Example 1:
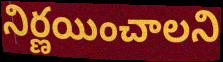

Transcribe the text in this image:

నిర్ణయించాలని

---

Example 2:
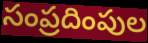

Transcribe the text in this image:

సంప్రదింపుల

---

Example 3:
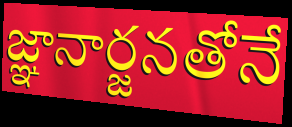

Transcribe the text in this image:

జ్ఞానార్జనతోనే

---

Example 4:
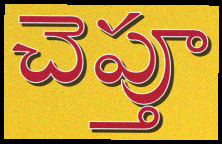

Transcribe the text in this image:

చెప్తూ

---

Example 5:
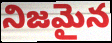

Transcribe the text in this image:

నిజమైన